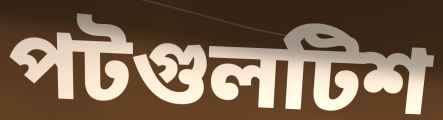
পটগুলটিশ